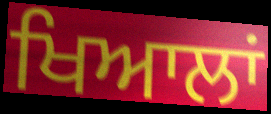
ਖਿਆਲਾਂ